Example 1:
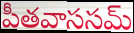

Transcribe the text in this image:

పీతవాససమ్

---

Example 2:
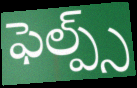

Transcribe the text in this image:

ఫెల్ప్స్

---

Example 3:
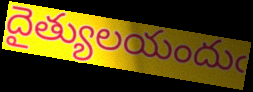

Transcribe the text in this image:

దైత్యులయందుఁ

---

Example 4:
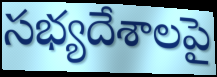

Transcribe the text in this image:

సభ్యదేశాలపై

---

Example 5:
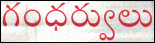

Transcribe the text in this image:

గంధర్వులు